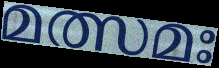
മത്സമഃ